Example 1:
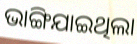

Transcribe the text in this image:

ଭାଙ୍ଗିଯାଇଥିଲା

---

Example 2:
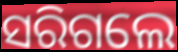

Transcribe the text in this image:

ସରିଗଲେ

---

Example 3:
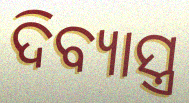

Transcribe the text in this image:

ଦିବ୍ୟାସ୍ତ୍ର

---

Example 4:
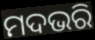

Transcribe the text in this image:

ମଦଭରି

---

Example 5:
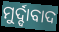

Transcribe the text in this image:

ମୁର୍ଦ୍ଦାବାଦ